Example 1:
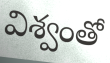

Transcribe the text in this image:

విశ్వంతో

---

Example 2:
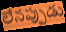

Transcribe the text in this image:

లేనప్పుడు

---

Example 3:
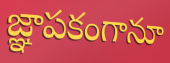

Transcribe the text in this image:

జ్ఞాపకంగానూ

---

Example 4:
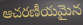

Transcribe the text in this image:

ఆచరణీయమైన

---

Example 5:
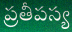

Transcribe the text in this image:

ప్రతీపస్య